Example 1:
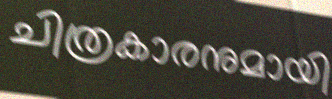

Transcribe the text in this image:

ചിത്രകാരനുമായി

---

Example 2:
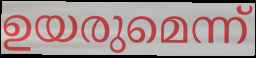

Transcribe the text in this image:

ഉയരുമെന്ന്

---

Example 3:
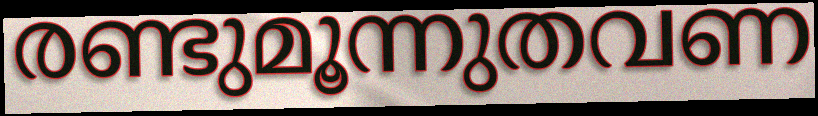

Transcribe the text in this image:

രണ്ടുമൂന്നുതവണ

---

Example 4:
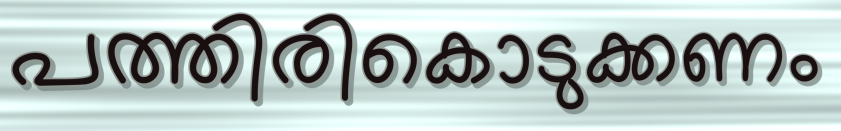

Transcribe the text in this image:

പത്തിരികൊടുക്കണം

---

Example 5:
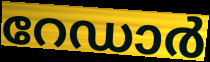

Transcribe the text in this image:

റേഡാർ